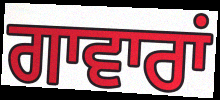
ਗਾਵਾਰਾਂ